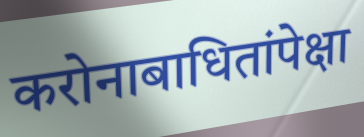
करोनाबाधितांपेक्षा